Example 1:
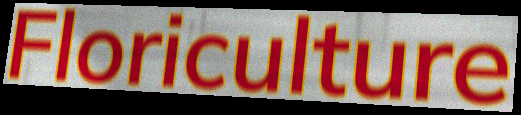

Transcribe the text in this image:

Floriculture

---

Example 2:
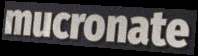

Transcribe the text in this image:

mucronate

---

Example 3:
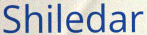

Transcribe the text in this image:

Shiledar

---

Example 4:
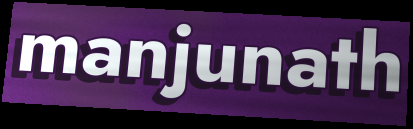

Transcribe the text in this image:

manjunath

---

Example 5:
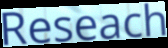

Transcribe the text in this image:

Reseach